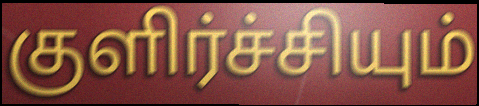
குளிர்ச்சியும்